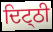
ਦਿਟ੍ਠੀ